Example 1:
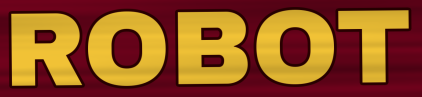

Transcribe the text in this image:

ROBOT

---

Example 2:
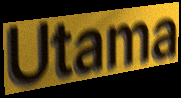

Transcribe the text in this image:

Utama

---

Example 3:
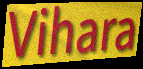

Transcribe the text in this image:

Vihara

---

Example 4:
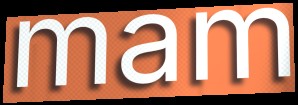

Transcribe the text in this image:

mam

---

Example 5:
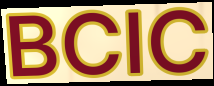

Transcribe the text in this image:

BCIC